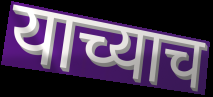
याच्याच